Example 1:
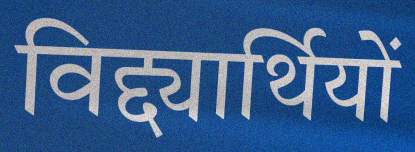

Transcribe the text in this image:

विद्द्यार्थियों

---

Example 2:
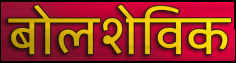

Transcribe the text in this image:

बोलशेविक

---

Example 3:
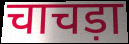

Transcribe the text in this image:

चाचड़ा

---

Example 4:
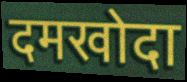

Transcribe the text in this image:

दमखोदा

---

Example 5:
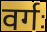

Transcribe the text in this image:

वर्गः